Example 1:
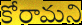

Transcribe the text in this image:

కోరామని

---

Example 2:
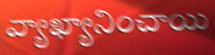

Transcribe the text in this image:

వ్యాఖ్యానించాయి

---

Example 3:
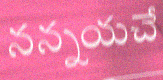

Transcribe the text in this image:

నన్నయచే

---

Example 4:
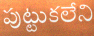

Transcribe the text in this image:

పుట్టుకలేని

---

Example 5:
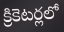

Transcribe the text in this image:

క్రికెటర్లలో